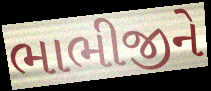
ભાભીજીને